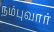
நம்புவார்